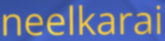
neelkarai